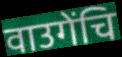
वाउगेंचि